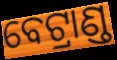
ବେଟ୍ରାଣ୍ଡ